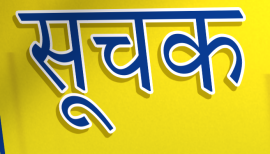
सूचक